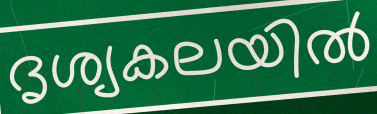
ദൃശ്യകലയിൽ